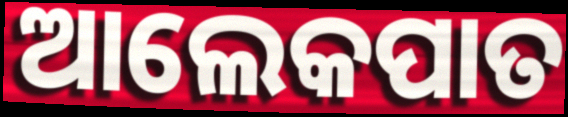
ଆଲେକପାତ